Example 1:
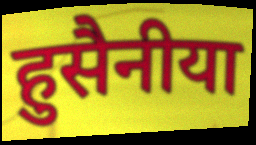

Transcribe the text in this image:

हुसैनीया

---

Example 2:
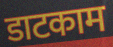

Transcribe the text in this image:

डाटकाम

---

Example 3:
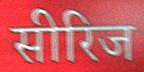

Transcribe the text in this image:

सीरिज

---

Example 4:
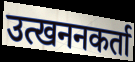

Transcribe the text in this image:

उत्खननकर्ता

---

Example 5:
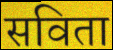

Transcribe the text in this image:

सविता